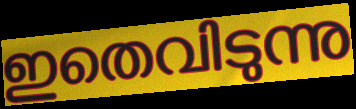
ഇതെവിടുന്നു